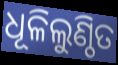
ଧୂଳିଲୁଣ୍ଠିତ